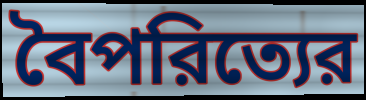
বৈপরিত্যের